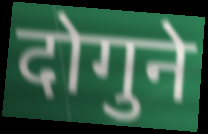
दोगुने